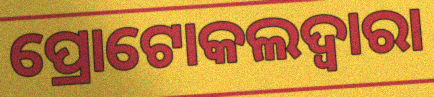
ପ୍ରୋଟୋକଲଦ୍ୱାରା